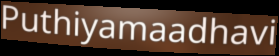
Puthiyamaadhavi